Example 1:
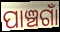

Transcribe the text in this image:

ପାଞ୍ଚଗାଁ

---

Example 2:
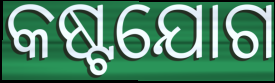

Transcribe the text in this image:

କଷ୍ଟଯୋଗ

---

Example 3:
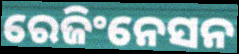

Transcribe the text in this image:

ରେଜିଂନେସନ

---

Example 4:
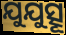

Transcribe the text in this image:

ଯୁଯୁତ୍ସୂ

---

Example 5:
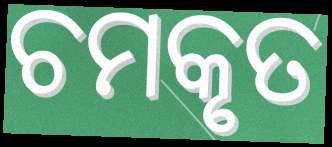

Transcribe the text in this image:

ଚମକୃତ